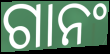
ଗାନଂ